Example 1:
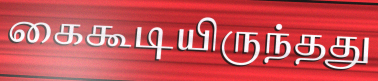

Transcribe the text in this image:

கைகூடியிருந்தது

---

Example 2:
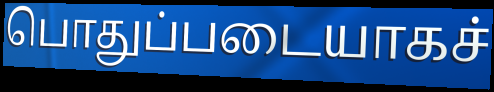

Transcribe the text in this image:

பொதுப்படையாகச்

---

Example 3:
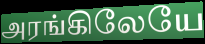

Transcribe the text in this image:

அரங்கிலேயே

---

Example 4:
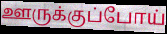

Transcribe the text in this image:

ஊருக்குப்போய்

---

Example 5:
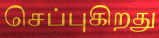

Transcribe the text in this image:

செப்புகிறது